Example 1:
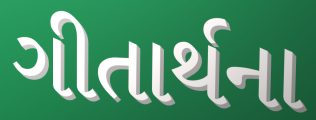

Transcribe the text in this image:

ગીતાર્થના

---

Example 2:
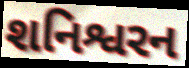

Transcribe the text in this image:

શનિશ્વરન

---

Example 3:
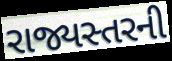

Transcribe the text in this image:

રાજ્યસ્તરની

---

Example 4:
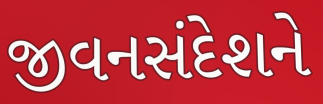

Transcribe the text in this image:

જીવનસંદેશને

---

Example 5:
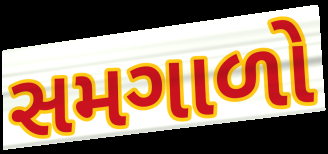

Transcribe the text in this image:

સમગાળો